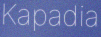
Kapadia